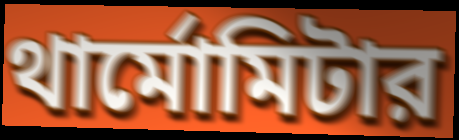
থার্মোমিটার